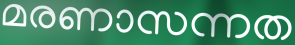
മരണാസന്നത